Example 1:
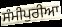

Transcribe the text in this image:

ਸੰਮੀਪੁਰੀਆ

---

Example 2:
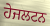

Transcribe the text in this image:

ਹੇਜਲਟਨ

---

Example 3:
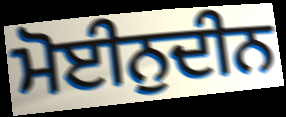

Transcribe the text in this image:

ਮੋਈਨੁਦੀਨ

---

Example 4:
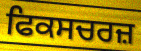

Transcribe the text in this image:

ਫਿਕਸਚਰਜ਼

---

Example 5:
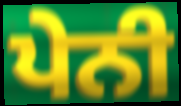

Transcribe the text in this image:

ਪੇਨੀ